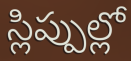
స్లిప్పుల్లో